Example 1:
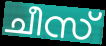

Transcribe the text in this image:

ചീസ്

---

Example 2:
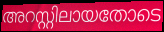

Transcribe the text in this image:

അറസ്റ്റിലായതോടെ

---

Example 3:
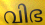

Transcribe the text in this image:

വിഭ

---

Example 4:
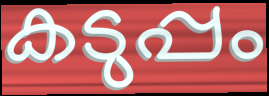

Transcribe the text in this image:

കടുപ്പം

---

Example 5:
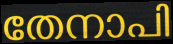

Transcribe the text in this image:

തേനാപി